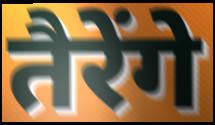
तैरेंगे